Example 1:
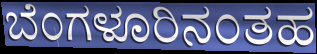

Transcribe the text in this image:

ಬೆಂಗಳೂರಿನಂತಹ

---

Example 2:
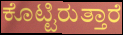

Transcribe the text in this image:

ಕೊಟ್ಟಿರುತ್ತಾರೆ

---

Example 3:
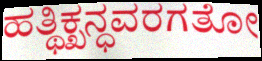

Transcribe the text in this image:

ಹತ್ಥಿಕ್ಖನ್ಧವರಗತೋ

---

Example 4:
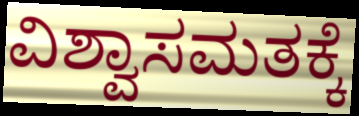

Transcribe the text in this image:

ವಿಶ್ವಾಸಮತಕ್ಕೆ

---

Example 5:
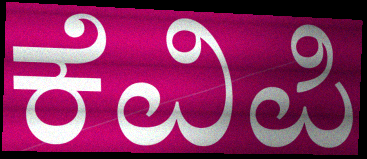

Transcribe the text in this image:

ಕೆವಿಪಿ